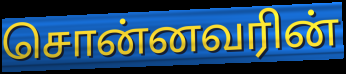
சொன்னவரின்